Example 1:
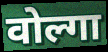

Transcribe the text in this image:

वोल्गा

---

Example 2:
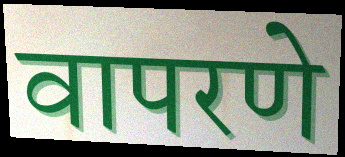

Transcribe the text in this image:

वापरणे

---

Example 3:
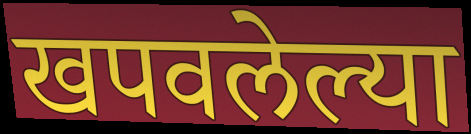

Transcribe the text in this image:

खपवलेल्या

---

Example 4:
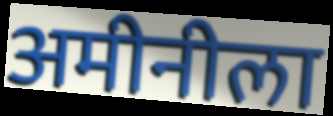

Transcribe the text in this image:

अमीनीला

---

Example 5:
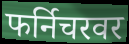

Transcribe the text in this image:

फर्निचरवर